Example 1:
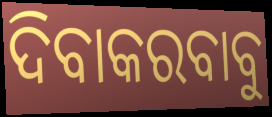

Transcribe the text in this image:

ଦିବାକରବାବୁ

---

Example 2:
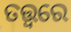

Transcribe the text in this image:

ତତ୍ତ୍ୱରେ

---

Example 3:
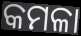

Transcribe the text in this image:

କମଳା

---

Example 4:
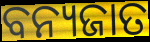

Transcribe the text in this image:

ବନ୍ୟଜାତ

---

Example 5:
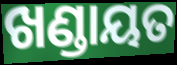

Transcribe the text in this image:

ଖଣ୍ଡାୟତ